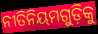
ନୀତିନିୟମଗୁଡ଼ିକୁ